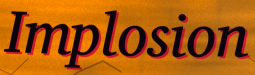
Implosion